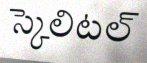
స్కెలిటల్